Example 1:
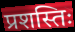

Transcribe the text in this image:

प्रशस्तिः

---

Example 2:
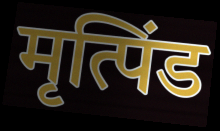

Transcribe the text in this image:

मृत्पिंड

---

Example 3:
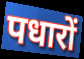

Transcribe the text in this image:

पधारों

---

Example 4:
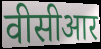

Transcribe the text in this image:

वीसीआर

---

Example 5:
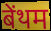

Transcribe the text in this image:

बेंथम